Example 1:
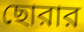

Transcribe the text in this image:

ছোরার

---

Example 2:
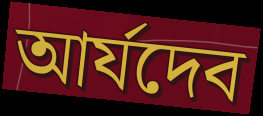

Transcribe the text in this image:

আর্যদেব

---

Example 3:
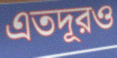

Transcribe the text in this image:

এতদূরও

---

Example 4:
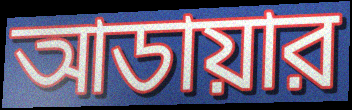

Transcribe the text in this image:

আডায়ার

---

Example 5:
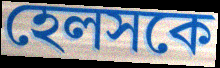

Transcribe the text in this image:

হেলসকে